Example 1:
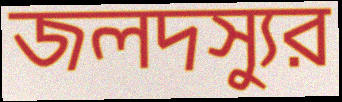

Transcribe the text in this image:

জলদস্যুর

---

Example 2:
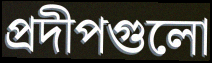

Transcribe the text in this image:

প্রদীপগুলো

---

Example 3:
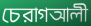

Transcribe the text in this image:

চেরাগআলী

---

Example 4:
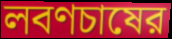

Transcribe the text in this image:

লবণচাষের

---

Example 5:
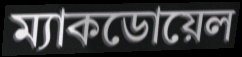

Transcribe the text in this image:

ম্যাকডোয়েল